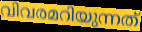
വിവരമറിയുന്നത്